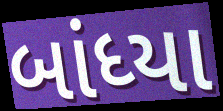
બાંધ્યા